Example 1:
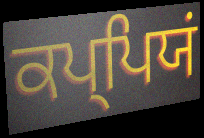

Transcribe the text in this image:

ਕਪ੍ਪਿਯਂ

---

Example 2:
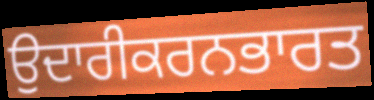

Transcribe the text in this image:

ਉਦਾਰੀਕਰਨਭਾਰਤ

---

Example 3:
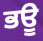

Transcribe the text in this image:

ਭਊ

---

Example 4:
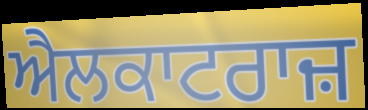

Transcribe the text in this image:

ਐਲਕਾਟਰਾਜ਼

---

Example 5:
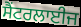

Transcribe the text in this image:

ਸੈਂਟਰਲਾਈਜ